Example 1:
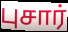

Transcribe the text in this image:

புசார்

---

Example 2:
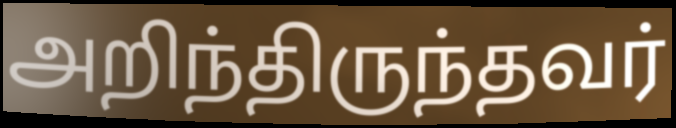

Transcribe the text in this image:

அறிந்திருந்தவர்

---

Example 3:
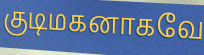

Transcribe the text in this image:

குடிமகனாகவே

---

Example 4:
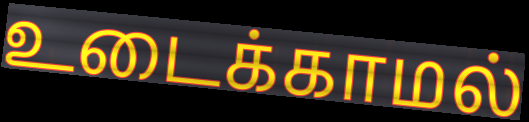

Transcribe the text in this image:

உடைக்காமல்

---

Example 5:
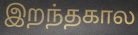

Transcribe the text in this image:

இறந்தகால